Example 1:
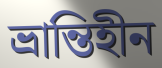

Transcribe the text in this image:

ভ্রান্তিহীন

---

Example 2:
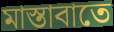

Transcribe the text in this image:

মাস্তাবাতে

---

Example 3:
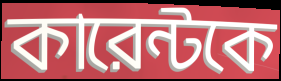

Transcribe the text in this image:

কারেন্টকে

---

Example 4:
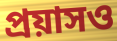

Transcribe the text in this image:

প্রয়াসও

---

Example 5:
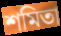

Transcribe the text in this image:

শমিতা